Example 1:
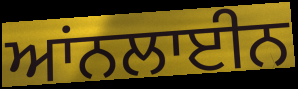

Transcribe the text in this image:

ਆਂਨਲਾਈਨ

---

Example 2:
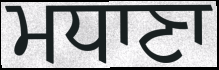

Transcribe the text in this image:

ਮਧਾਣਾ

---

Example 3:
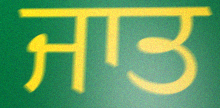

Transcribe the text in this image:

ਜਾਤ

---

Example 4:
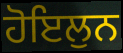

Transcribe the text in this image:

ਹੋਇਲੁਨ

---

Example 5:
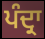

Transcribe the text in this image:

ਪੰਦ੍ਰਾ